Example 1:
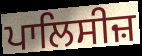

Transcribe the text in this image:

ਪਾਲਿਸੀਜ਼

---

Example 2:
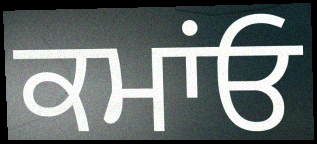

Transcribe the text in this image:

ਕਮਾਂਓ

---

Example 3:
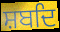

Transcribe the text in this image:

ਸ਼ਬਦਿ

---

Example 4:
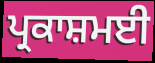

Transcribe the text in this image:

ਪ੍ਰਕਾਸ਼ਮਈ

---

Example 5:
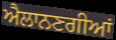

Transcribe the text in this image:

ਐਲਾਨਣਗੀਆਂ